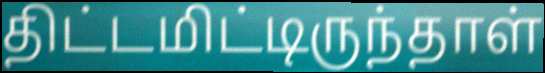
திட்டமிட்டிருந்தாள்